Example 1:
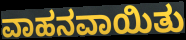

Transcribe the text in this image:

ವಾಹನವಾಯಿತು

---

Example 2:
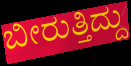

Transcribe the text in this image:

ಬೀರುತ್ತಿದ್ದು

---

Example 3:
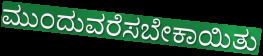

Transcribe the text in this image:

ಮುಂದುವರೆಸಬೇಕಾಯಿತು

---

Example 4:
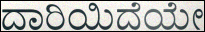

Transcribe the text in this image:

ದಾರಿಯಿದೆಯೇ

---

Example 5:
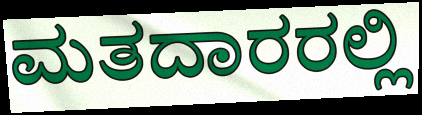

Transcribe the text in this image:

ಮತದಾರರಲ್ಲಿ